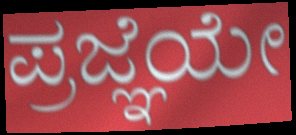
ಪ್ರಜ್ಞೆಯೇ